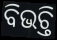
ବିଭଚ୍ତି